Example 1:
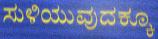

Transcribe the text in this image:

ಸುಳಿಯುವುದಕ್ಕೂ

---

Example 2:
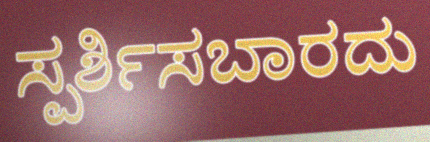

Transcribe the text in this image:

ಸ್ಪರ್ಶಿಸಬಾರದು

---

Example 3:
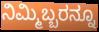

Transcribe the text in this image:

ನಿಮ್ಮಿಬ್ಬರನ್ನೂ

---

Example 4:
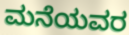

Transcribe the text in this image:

ಮನೆಯವರ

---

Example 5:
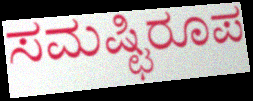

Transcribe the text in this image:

ಸಮಷ್ಟಿರೂಪ